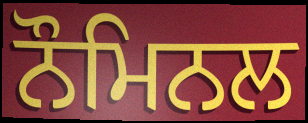
ਨੌਮਿਨਲ